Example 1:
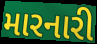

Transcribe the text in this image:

મારનારી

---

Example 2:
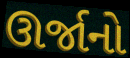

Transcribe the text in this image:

ઊર્જાનો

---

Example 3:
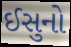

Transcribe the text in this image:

ઈસુનો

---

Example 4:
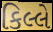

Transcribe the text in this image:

કિલ્લે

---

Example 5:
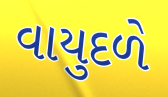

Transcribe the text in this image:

વાયુદળે